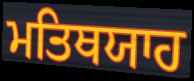
ਮਤਿਥਯਾਹ